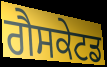
ਗੈਸਕੇਟਡ